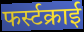
फर्स्टक्राई